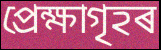
প্ৰেক্ষাগৃহৰ